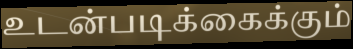
உடன்படிக்கைக்கும்